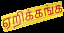
ஏறிக்கங்க